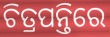
ଚିତ୍ରପନ୍ତିରେ